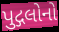
પુદ્ગલોનો